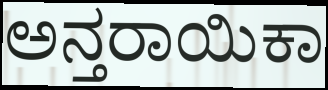
ಅನ್ತರಾಯಿಕಾ